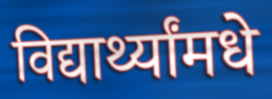
विद्यार्थ्यांमधे